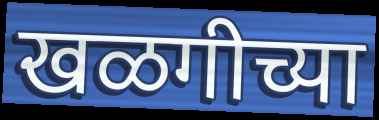
खळगीच्या